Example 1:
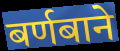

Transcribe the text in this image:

बर्णबाने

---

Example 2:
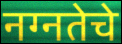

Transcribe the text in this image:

नग्नतेचे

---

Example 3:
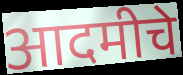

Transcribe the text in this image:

आदमीचे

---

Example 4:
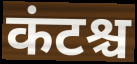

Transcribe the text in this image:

कंटश्च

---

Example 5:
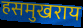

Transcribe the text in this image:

हसमुखराय